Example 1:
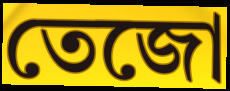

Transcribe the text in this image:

তেজো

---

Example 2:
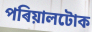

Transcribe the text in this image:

পৰিয়ালটোক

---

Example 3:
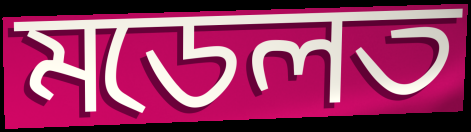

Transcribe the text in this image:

মডেলত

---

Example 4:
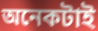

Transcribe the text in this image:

অনেকটাই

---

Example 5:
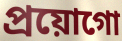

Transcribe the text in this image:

প্ৰয়োগো